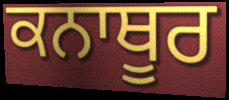
ਕਨਾਥੂਰ